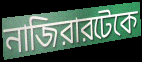
নাজিরারটেকে